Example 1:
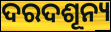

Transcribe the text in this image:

ଦରଦଶୂନ୍ୟ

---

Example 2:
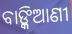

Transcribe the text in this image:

ବାଙ୍କିଆଣୀ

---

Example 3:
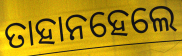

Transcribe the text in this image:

ତାହାନହେଲେ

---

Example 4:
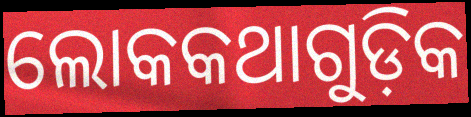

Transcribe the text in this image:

ଲୋକକଥାଗୁଡ଼ିକ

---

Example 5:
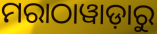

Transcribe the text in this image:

ମରାଠାୱାଡ଼ାରୁ